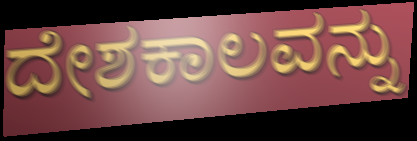
ದೇಶಕಾಲವನ್ನು